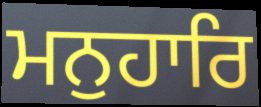
ਮਨੁਹਾਰਿ